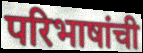
परिभाषांची